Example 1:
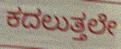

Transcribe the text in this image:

ಕದಲುತ್ತಲೇ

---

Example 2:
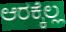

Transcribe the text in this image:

ಆರಕ್ಕೆಲ್ಲ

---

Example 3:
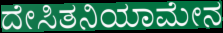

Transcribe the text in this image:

ದೇಸಿತನಿಯಾಮೇನ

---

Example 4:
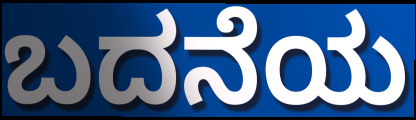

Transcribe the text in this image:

ಬದನೆಯ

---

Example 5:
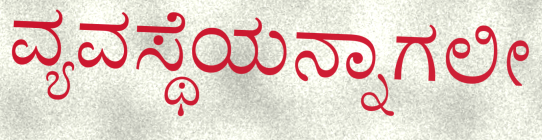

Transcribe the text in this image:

ವ್ಯವಸ್ಥೆಯನ್ನಾಗಲೀ